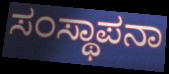
ಸಂಸ್ಥಾಪನಾ